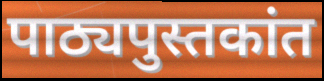
पाठ्यपुस्तकांत